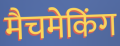
मैचमेकिंग